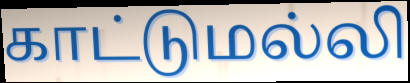
காட்டுமல்லி